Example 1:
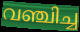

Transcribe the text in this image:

വഞ്ചിച്ച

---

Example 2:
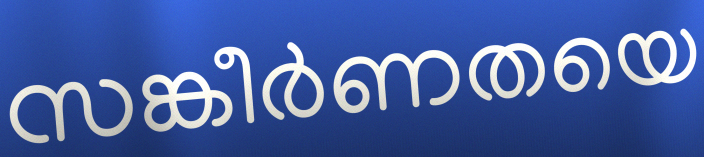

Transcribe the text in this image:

സങ്കീർണതയെ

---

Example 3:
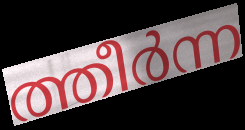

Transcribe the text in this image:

ത്തീർന്ന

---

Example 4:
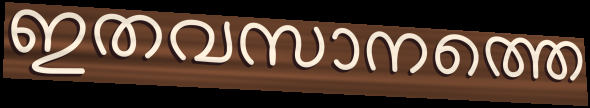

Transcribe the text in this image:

ഇതവസാനത്തെ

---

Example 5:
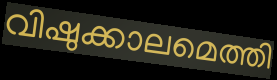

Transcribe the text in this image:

വിഷുക്കാലമെത്തി